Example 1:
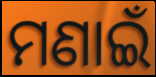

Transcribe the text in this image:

ମଣାଇଁ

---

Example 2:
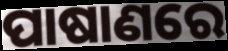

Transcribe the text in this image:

ପାଷାଣରେ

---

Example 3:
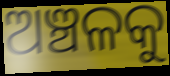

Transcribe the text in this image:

ଅଞ୍ଚଳକୁ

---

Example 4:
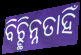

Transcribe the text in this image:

ବିଚ୍ଛିନ୍ନତାହିଁ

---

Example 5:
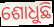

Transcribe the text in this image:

ଶୋଧୁଛି